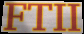
FTII